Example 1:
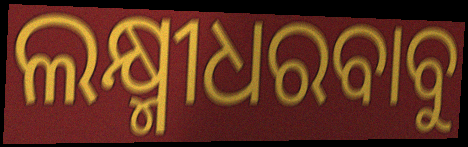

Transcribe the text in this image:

ଲକ୍ଷ୍ମୀଧରବାବୁ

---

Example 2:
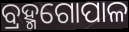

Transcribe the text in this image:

ବ୍ରହ୍ମଗୋପାଳ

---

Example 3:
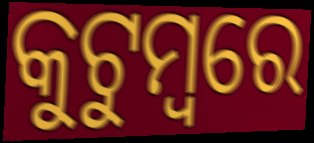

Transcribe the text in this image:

କୁଟୁମ୍ଵରେ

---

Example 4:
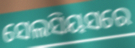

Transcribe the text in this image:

ସେଲସିୟସରେ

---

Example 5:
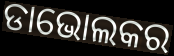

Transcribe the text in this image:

ଡାଭୋଲକର